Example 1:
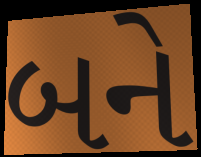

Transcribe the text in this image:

બને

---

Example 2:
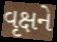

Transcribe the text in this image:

વૃક્ષને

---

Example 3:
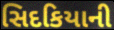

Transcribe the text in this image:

સિદકિયાની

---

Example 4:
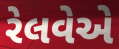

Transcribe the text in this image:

રેલવેએ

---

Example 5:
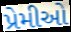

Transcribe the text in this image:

પ્રેમીઓ